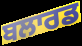
ਬਲਾਰਡ